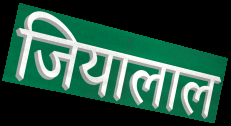
जियालाल